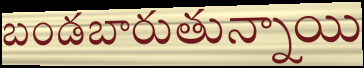
బండబారుతున్నాయి